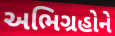
અભિગ્રહોને